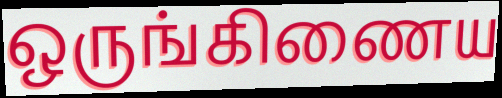
ஒருங்கிணைய